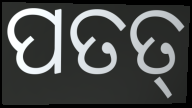
ପତତ୍